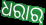
ଧରାର